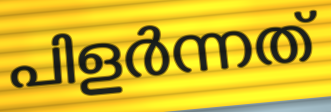
പിളർന്നത്